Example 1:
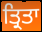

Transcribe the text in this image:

ਤ੍ਰਿਤਾ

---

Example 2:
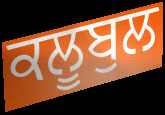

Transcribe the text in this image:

ਕਲੂਬੁਲ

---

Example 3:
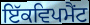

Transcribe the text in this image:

ਇੱਕਵਿਪਮੈਂਟ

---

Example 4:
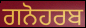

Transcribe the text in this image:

ਗਨੋਹਰਬ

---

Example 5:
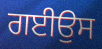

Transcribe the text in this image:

ਗਈਉਸ